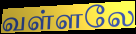
வள்ளலே